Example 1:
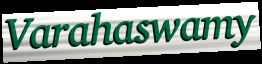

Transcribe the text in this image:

Varahaswamy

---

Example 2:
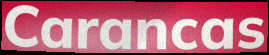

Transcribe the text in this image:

Carancas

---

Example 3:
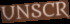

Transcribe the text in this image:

UNSCR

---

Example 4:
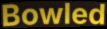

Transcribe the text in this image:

Bowled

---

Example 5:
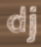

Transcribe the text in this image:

dj